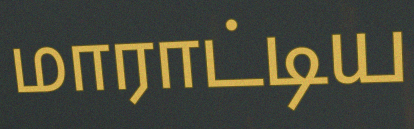
மாராட்டிய